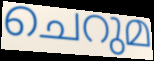
ചെറുമ